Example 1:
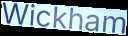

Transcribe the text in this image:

Wickham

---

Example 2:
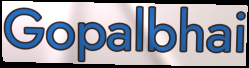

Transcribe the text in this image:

Gopalbhai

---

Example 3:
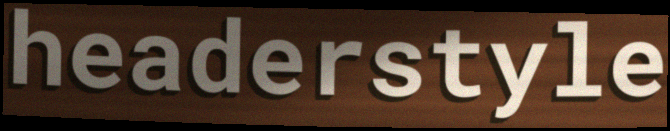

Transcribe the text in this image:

headerstyle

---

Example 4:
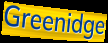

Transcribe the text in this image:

Greenidge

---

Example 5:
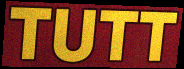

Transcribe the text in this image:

TUTT